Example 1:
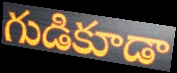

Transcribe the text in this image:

గుడికూడా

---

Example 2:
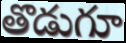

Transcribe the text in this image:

తొడుగూ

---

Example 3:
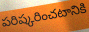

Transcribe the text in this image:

పరిష్కరించటానికి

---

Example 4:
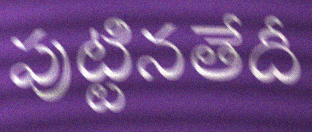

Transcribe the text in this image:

పుట్టినతేదీ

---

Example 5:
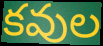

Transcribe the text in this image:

కవుల